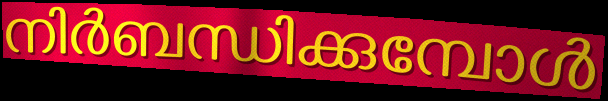
നിർബന്ധിക്കുമ്പോൾ